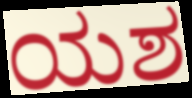
ಯಶ